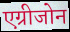
एग्रीजोन